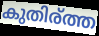
കുതിര്ത്ത